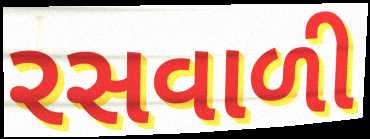
રસવાળી